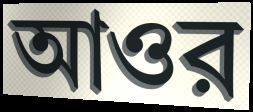
আওর